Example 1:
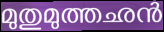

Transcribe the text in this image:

മുതുമുത്തഛൻ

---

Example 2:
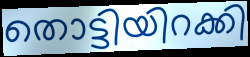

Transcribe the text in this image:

തൊട്ടിയിറക്കി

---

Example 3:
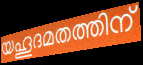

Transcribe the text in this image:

യഹൂദമതത്തിന്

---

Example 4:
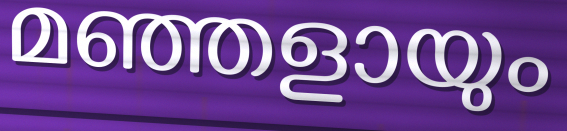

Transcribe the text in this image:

മഞ്ഞളായും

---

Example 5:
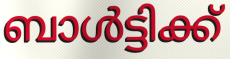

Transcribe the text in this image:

ബാൾട്ടിക്ക്